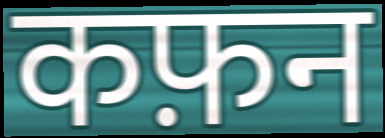
कफ़न